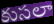
కుసలా